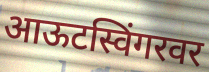
आऊटस्विंगरवर